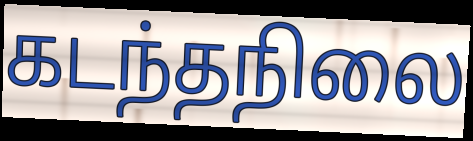
கடந்தநிலை